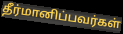
தீர்மானிப்பவர்கள்